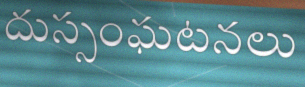
దుస్సంఘటనలు